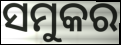
ସମୁକର